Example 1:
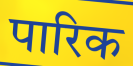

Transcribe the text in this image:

पारिक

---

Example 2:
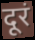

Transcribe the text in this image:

दूरं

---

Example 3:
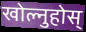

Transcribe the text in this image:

खोल्नुहोस्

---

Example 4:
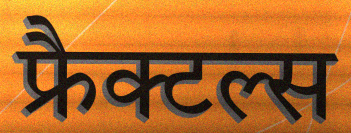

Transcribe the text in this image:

फ्रैक्टल्स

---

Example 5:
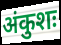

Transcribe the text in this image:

अंकुशः